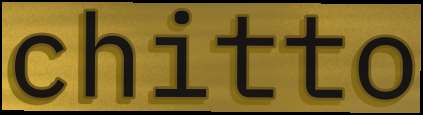
chitto